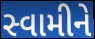
સ્વામીને